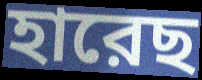
হারেছ